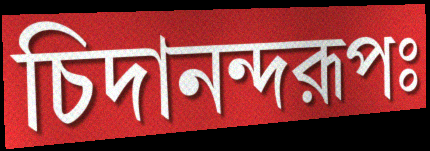
চিদানন্দরূপঃ